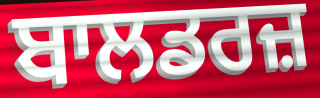
ਬਾਲਡਰਜ਼